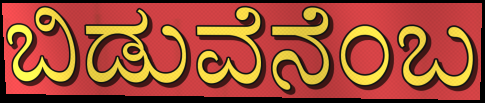
ಬಿಡುವೆನೆಂಬ